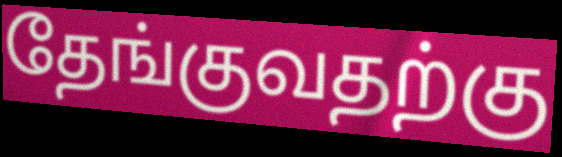
தேங்குவதற்கு